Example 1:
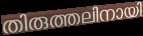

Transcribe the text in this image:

തിരുത്തലിനായി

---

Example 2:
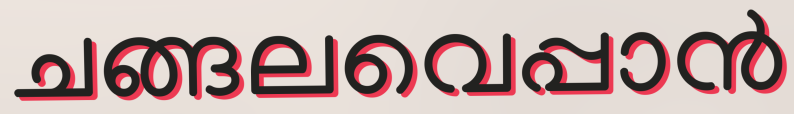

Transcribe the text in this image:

ചങ്ങലവെപ്പാൻ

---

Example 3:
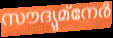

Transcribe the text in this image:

സൗദ്യുമ്നേർ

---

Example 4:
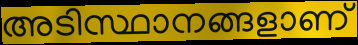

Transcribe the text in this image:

അടിസ്ഥാനങ്ങളാണ്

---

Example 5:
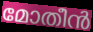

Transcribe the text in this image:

മോതീൻ